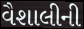
વૈશાલીની